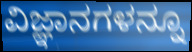
ವಿಜ್ಞಾನಗಳನ್ನೂ